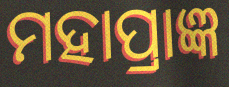
ମହାପ୍ରାଜ୍ଞ